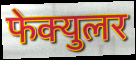
फेक्युलर